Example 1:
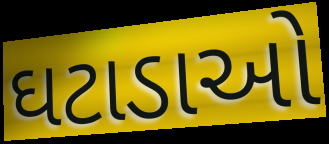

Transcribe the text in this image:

ઘટાડાઓ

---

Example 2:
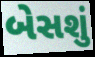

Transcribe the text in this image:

બેસશું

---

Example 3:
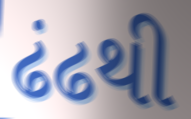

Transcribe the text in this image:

ઢંઢથી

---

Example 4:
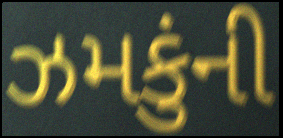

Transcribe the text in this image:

ઝમકુંની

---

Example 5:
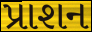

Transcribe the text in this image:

પ્રાશન